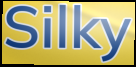
Silky